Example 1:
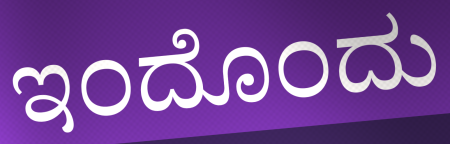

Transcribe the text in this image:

ಇಂದೊಂದು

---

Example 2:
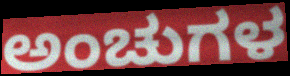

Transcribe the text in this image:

ಅಂಚುಗಳ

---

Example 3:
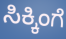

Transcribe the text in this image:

ಸಿಕ್ಕಿಂಗೆ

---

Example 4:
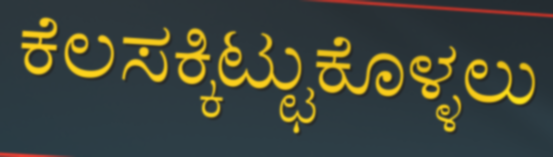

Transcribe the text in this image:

ಕೆಲಸಕ್ಕಿಟ್ಟುಕೊಳ್ಳಲು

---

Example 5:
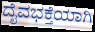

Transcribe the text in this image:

ದೈವಭಕ್ತೆಯಾಗಿ